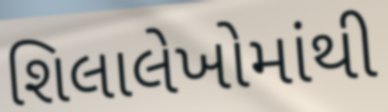
શિલાલેખોમાંથી